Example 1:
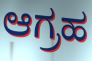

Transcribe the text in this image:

ಆಗ್ರಹ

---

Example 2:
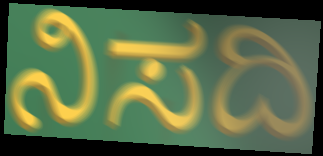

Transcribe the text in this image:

ನಿಸದಿ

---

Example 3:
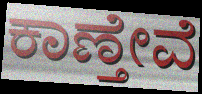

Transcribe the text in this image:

ಕಾಣ್ತೇವೆ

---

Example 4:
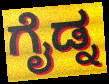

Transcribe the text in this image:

ಗೈಡ್ನ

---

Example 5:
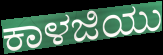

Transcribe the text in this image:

ಕಾಳಜಿಯು